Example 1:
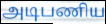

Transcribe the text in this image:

அடிபணிய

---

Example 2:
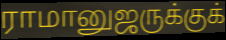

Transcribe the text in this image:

ராமானுஜருக்குக்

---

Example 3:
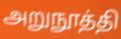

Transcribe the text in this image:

அறுநூத்தி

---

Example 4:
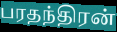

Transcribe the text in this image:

பரதந்திரன்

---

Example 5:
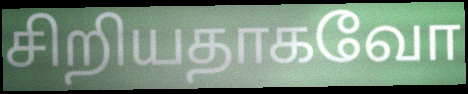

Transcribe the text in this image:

சிறியதாகவோ